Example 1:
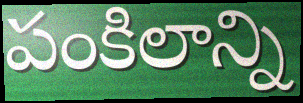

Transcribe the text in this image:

పంకిలాన్ని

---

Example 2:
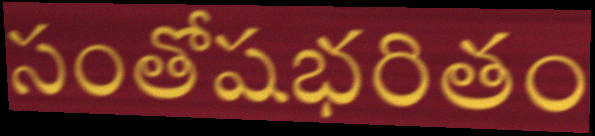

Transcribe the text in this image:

సంతోషభరితం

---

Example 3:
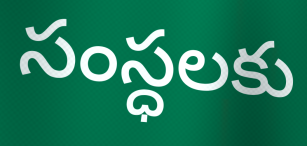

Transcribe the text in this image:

సంస్ధలకు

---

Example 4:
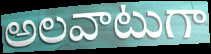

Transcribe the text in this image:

అలవాటుగా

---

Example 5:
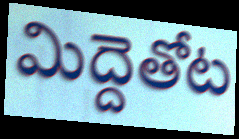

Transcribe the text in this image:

మిద్దెతోట